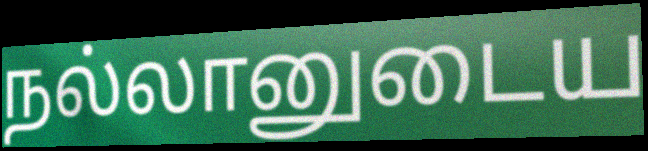
நல்லானுடைய